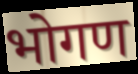
भोगण